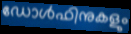
ഡോൾഫിനുകളും